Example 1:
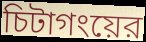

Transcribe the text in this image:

চিটাগংয়ের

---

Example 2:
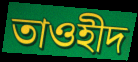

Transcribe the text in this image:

তাওহীদ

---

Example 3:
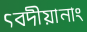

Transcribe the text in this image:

ৎবদীয়ানাং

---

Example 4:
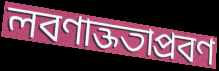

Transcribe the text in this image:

লবণাক্ততাপ্রবণ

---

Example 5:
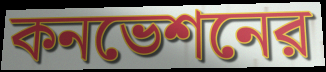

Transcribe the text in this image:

কনভেশনের